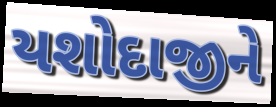
યશોદાજીને